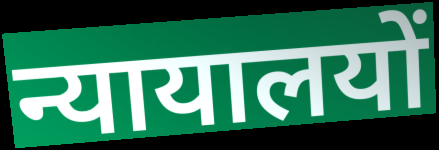
न्यायालयों